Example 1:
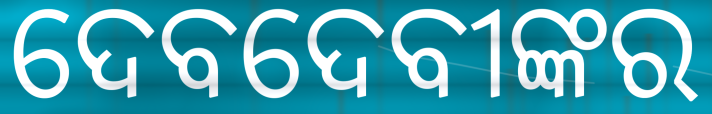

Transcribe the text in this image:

ଦେବଦେବୀଙ୍କର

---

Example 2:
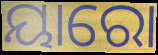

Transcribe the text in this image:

ୟାରୋ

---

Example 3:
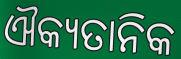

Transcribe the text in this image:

ଐକ୍ୟତାନିକ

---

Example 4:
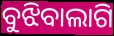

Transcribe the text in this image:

ବୁଝିବାଲାଗି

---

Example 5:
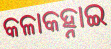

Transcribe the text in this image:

କଳାକହ୍ନାଇ